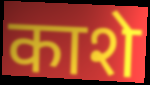
काशे